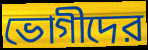
ভোগীদের